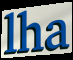
lha